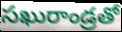
సఖురాండ్రతో